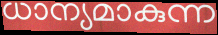
ധാന്യമാകുന്ന